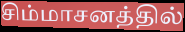
சிம்மாசனத்தில்